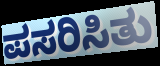
ಪಸರಿಸಿತು